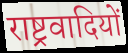
राष्ट्रवादियों